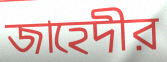
জাহেদীর